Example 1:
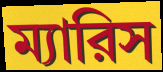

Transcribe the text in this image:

ম্যারিস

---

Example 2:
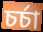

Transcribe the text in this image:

চর্চা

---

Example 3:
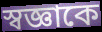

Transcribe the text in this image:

স্বজ্ঞাকে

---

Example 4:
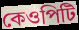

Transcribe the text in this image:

কেওপিটি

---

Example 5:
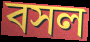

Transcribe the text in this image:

বসল